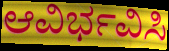
ಆವಿರ್ಭವಿಸಿ